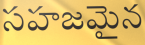
సహజమైన